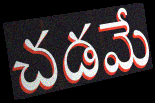
చడమే